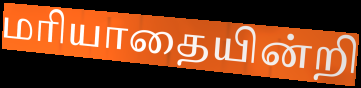
மரியாதையின்றி